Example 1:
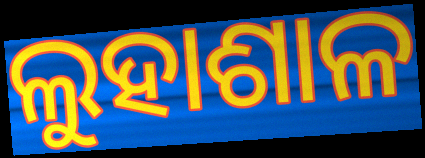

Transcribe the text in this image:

ଲୁହାଶାଳ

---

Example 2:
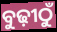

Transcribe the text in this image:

ବୁଢ଼ୀଠୁଁ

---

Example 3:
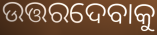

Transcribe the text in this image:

ଉତ୍ତରଦେବାକୁ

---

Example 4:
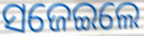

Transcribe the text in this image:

ସଜେଇଲେ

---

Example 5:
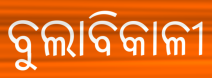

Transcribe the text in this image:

ବୁଲାବିକାଳୀ